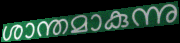
ശാന്തമാകുന്നു